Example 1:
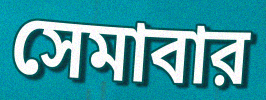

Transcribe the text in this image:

সেমাবার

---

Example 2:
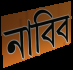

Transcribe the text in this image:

নাবিব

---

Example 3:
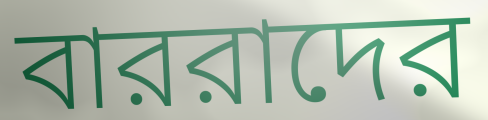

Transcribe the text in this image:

বাররাদের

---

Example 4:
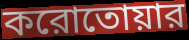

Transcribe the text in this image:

করোতোয়ার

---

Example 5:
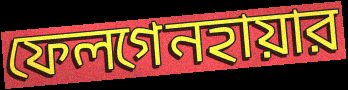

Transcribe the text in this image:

ফেলগেনহায়ার